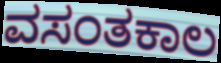
ವಸಂತಕಾಲ